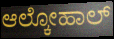
ಆಲ್ಕೋಹಾಲ್